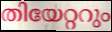
തിയേറ്ററും